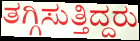
ತಗ್ಗಿಸುತ್ತಿದ್ದರು